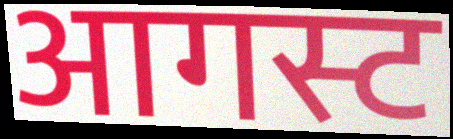
आगस्ट